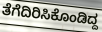
ತೆಗೆದಿರಿಸಿಕೊಂಡಿದ್ದ